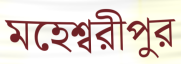
মহেশ্বরীপুর